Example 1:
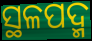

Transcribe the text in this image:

ସ୍ଥଳପଦ୍ମ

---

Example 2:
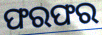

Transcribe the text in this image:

ଫରଫର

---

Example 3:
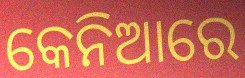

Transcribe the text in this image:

କେନିଆରେ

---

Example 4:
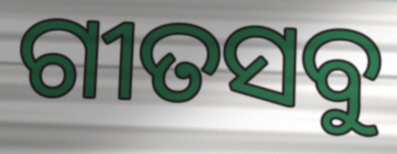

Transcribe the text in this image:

ଗୀତସବୁ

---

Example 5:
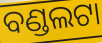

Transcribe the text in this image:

ବଣ୍ଡଲଟା